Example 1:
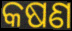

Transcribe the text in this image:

କଷଣ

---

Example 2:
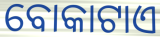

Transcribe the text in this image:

ବୋକାଟାଏ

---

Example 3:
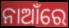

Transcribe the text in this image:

ନାଆଁରେ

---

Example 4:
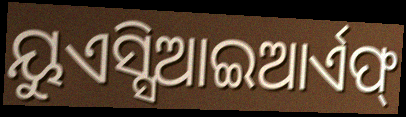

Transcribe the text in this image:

ୟୁଏସ୍ସିଆଇଆର୍ଏଫ୍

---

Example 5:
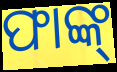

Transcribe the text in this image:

ଫାଙ୍କ୍